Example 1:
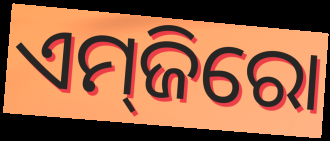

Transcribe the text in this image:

ଏମ୍‌ଜିରୋ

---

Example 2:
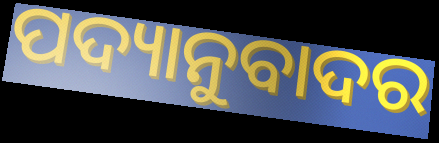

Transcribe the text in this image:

ପଦ୍ୟାନୁବାଦର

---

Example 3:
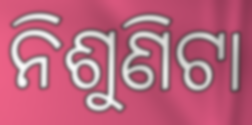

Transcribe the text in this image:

ନିଶୁଣିଟା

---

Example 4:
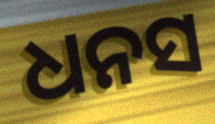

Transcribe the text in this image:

ଧନସ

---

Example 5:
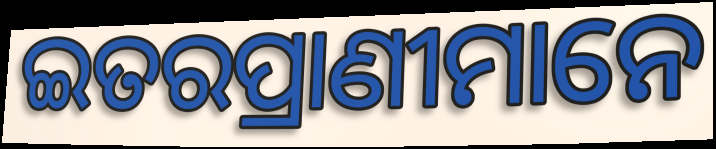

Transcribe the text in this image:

ଇତରପ୍ରାଣୀମାନେ